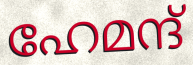
ഹേമന്ദ്